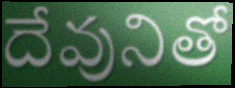
దేవునితో